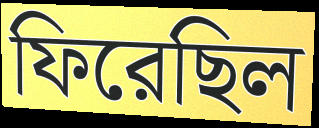
ফিরেছিল